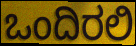
ಒಂದಿರಲಿ